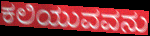
ಕಲಿಯುವವನು